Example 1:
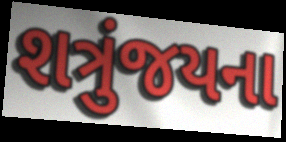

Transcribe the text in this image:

શત્રુંજયના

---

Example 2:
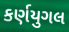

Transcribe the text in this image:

કર્ણયુગલ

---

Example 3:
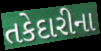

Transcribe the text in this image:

તકેદારીના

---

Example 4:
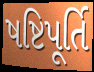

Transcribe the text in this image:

ષષ્ટિપૂર્તિ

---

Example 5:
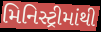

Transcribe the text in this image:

મિનિસ્ટ્રીમાંથી